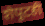
शेपूटही